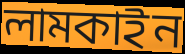
লামকাইন